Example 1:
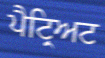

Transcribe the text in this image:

ਪੈਟ੍ਰਿਅਟ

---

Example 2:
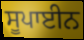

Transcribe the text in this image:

ਸੂਪਾਈਨ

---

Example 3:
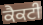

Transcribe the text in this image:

ਕੈਕਟੀ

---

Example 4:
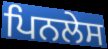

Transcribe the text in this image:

ਪਿਨਲੇਸ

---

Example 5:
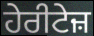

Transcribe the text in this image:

ਹੇਰੀਟੇਜ਼